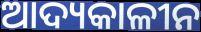
ଆଦ୍ୟକାଳୀନ